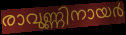
രാവുണ്ണിനായർ